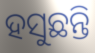
ହସୁଛନ୍ତି